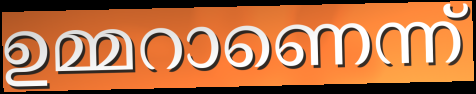
ഉമ്മറാണെന്ന്